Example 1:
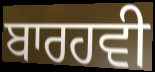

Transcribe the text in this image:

ਬਾਰਹਵੀ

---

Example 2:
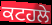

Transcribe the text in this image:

ਕਟਹਲੇ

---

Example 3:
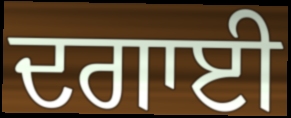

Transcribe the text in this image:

ਦਗਾਈ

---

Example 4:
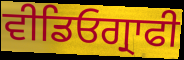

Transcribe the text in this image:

ਵੀਡਿਓਗ੍ਰਾਫੀ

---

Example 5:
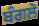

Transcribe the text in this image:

ਬੰਗਲੋ